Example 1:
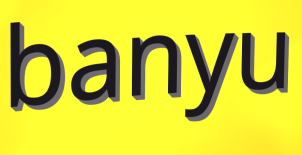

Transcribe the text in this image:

banyu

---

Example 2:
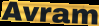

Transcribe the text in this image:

Avram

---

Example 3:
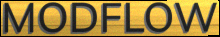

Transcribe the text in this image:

MODFLOW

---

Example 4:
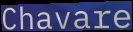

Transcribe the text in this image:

Chavare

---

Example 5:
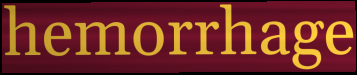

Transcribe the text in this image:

hemorrhage